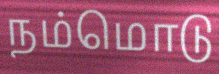
நம்மொடு